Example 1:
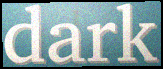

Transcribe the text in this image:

dark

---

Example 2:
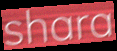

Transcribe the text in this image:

shara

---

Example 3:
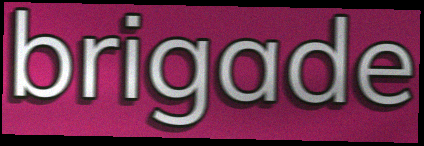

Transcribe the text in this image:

brigade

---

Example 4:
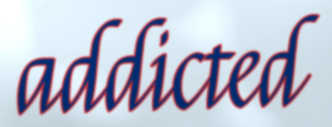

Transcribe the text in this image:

addicted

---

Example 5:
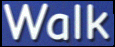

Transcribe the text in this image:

Walk